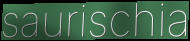
saurischia